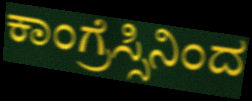
ಕಾಂಗ್ರೆಸ್ಸಿನಿಂದ